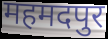
महमदपुर